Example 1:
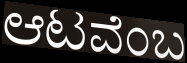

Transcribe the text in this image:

ಆಟವೆಂಬ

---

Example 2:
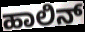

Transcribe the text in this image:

ಹಾಲಿನ್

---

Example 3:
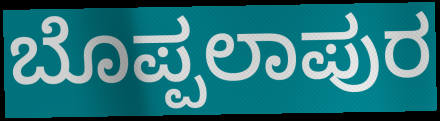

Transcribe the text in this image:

ಬೊಪ್ಪಲಾಪುರ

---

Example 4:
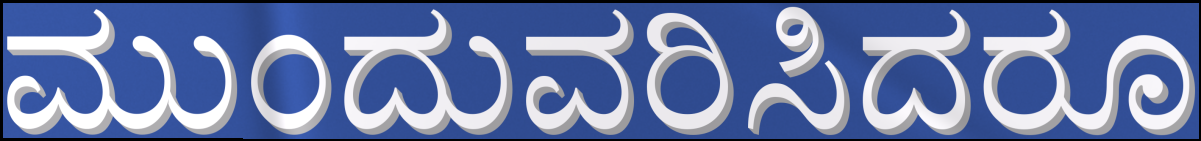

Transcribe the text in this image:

ಮುಂದುವರಿಸಿದರೂ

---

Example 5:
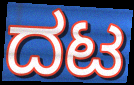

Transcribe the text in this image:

ದಟ